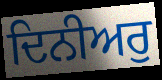
ਦਿਨੀਅਰੁ